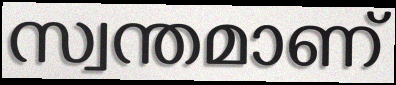
സ്വന്തമാണ്